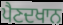
ਪੈਣਦਖਾਨ